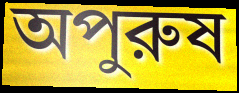
অপুরুষ